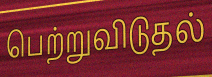
பெற்றுவிடுதல்